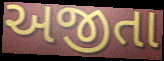
અજીતા